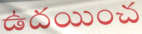
ఉదయించ